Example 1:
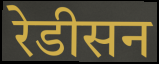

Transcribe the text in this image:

रेडीसन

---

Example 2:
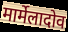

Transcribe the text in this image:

मार्मेलादोव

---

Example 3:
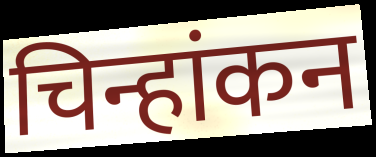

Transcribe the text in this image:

चिन्हांकन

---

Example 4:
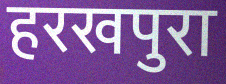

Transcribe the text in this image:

हरखपुरा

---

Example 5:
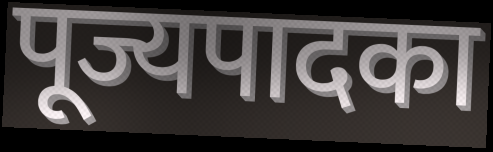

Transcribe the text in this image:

पूज्यपादका